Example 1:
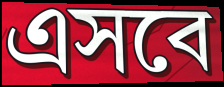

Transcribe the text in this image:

এসবে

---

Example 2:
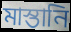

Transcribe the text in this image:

মাস্তানি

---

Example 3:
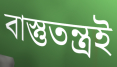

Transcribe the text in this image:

বাস্তুতন্ত্রই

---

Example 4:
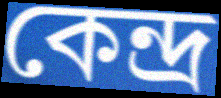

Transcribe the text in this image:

কেন্দ্র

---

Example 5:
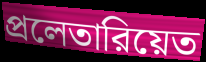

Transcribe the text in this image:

প্রলেতারিয়েত